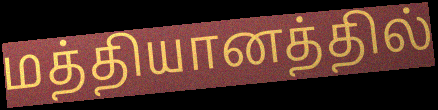
மத்தியானத்தில்